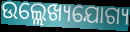
ଉଲ୍ଲେଖ୍ୟଯୋଗ୍ୟ